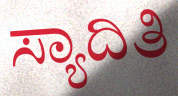
ಸ್ಯಾದಿತಿ